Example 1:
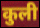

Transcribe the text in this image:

कुली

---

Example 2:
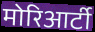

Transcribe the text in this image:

मोरिआर्टी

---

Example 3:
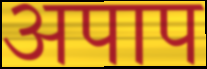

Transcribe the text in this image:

अपाप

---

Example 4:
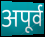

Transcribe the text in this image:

अपूर्व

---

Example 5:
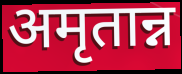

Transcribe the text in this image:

अमृतान्न